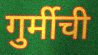
गुर्मीची